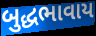
બુદ્ધભાવાય